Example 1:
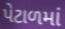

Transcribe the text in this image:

પેટાળમાં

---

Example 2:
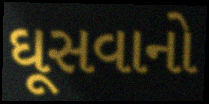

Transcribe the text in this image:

ઘૂસવાનો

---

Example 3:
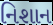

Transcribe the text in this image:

નિશાન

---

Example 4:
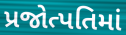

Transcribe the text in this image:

પ્રજોત્પતિમાં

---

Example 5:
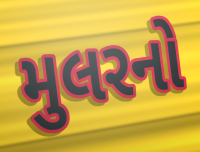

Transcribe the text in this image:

મુલરનો